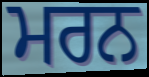
ਮਰਨ